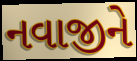
નવાજીને